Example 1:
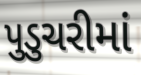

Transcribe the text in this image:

પુડુચરીમાં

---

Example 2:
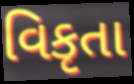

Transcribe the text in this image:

વિકૃતા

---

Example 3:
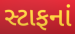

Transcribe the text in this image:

સ્ટાફનાં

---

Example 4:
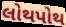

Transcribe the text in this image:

લોથપોથ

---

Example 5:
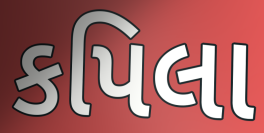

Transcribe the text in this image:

કપિલા